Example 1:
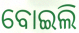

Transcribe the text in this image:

ବୋଇଲି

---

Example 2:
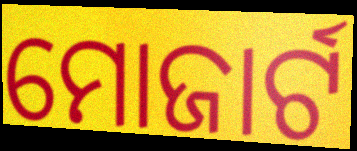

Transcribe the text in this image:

ମୋଜାର୍ଟ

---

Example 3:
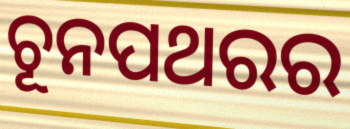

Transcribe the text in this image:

ଚୂନପଥରର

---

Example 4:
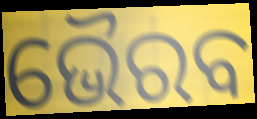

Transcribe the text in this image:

ଭୈରବ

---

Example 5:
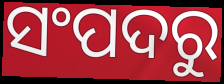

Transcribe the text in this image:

ସଂପଦରୁ